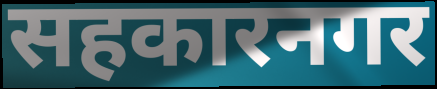
सहकारनगर